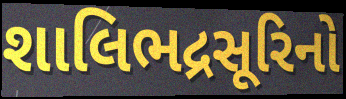
શાલિભદ્રસૂરિનો